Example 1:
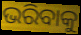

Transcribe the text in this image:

ଭରିବାକୁ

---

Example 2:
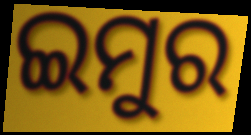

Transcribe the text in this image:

ଇମୁର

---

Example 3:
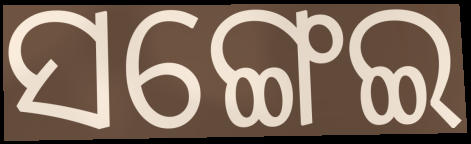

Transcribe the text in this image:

ସଙ୍ଗେଇ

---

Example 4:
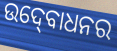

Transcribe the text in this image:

ଉଦ୍‍ବୋଧନର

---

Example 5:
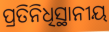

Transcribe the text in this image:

ପ୍ରତିନିଧିସ୍ଥାନୀୟ